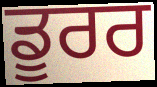
ਡੂਰਰ